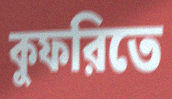
কুফরিতে